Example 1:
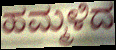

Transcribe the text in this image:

ಹಮ್ಮಳಿದ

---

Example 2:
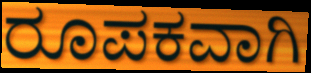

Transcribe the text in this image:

ರೂಪಕವಾಗಿ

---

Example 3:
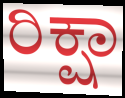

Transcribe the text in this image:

ರಿಕ್ಷಾ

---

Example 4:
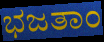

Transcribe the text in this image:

ಭಜತಾಂ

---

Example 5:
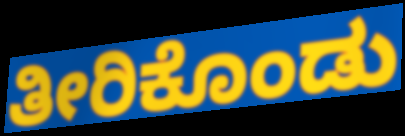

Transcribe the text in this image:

ತೀರಿಕೊಂಡು